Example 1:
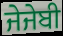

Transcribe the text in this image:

ਜੇਜੇਬੀ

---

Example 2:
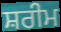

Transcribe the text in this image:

ਸ਼ਰੀਮ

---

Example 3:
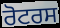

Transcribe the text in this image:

ਰੋਟਰਸ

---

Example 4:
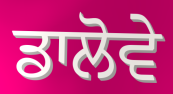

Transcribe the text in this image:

ਡਾਲੋਵੇ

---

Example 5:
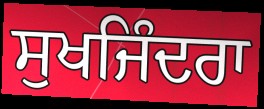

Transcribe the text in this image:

ਸੁਖਜਿੰਦਰਾ